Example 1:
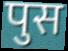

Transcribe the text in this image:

पुस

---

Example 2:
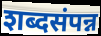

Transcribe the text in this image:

शब्दसंपन्न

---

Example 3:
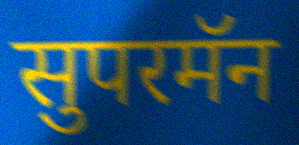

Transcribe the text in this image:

सुपरमॅन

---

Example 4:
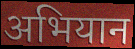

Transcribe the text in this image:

अभियान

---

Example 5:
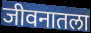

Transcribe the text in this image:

जीवनातला